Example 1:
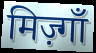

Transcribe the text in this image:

मिज़्गाँ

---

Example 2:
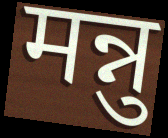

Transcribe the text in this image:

मन्नु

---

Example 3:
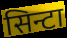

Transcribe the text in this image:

सिन्टा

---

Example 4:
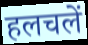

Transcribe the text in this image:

हलचलें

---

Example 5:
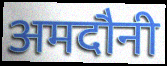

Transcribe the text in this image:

अमदौनी